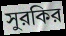
সুরকির